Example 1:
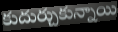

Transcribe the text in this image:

కుదుర్చుకున్నాయి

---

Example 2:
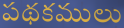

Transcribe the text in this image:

పథకములు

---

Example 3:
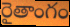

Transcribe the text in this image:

రైతాంగం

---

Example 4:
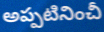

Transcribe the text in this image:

అప్పటినించీ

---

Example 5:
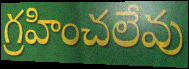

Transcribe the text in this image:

గ్రహించలేవు